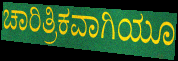
ಚಾರಿತ್ರಿಕವಾಗಿಯೂ